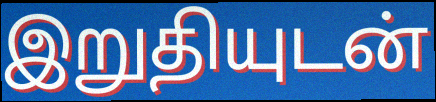
இறுதியுடன்